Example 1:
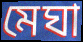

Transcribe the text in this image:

মেঘা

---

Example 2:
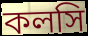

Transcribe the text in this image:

কলসি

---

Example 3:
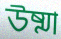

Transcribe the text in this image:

উষ্মা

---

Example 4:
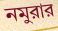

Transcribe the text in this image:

নমুরার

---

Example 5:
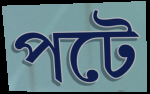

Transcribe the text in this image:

পটে